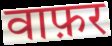
वाफ़र